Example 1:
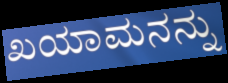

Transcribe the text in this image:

ಖಯಾಮನನ್ನು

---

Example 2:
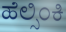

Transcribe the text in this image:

ಹೆಲ್ಸಿಂಕಿ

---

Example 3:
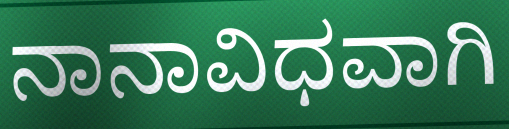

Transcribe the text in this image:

ನಾನಾವಿಧವಾಗಿ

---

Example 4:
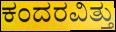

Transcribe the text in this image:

ಕಂದರವಿತ್ತು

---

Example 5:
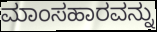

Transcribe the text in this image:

ಮಾಂಸಹಾರವನ್ನು